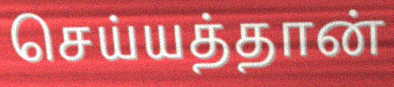
செய்யத்தான்